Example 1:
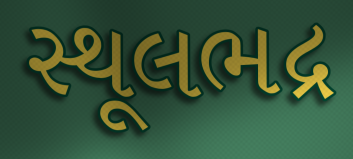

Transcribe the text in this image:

સ્થૂલભદ્ર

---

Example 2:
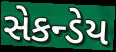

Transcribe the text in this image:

સેકન્ડેય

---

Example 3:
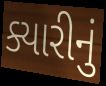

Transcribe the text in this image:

ક્યારીનું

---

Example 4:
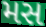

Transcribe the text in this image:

મસ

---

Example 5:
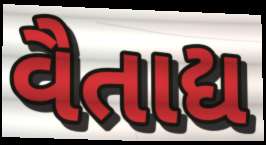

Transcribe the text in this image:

વૈતાદ્ય